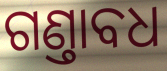
ଗଣ୍ତାବଧ